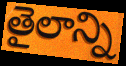
తైలాన్ని